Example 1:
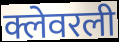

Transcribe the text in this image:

क्लेवरली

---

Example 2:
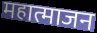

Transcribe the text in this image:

महात्माजन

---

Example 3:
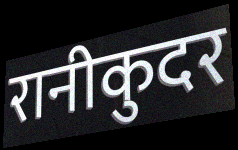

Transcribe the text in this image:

रानीकुदर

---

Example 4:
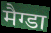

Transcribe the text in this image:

मैग्डा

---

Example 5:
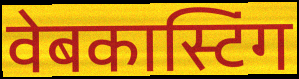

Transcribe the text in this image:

वेबकास्टिंग